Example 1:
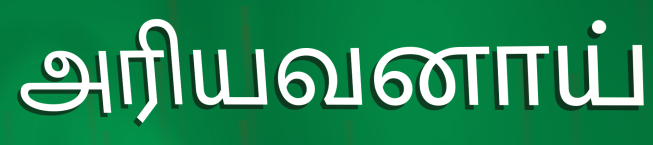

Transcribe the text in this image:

அரியவனாய்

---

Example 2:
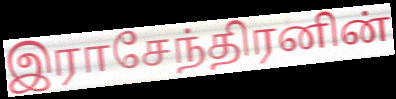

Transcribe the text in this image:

இராசேந்திரனின்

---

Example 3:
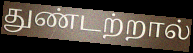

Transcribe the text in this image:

துண்டற்றால்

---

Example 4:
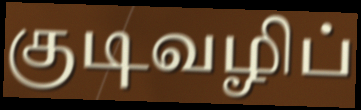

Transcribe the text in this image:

குடிவழிப்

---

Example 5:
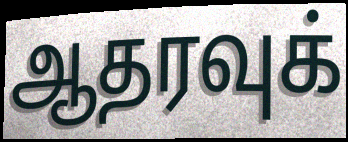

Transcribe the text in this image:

ஆதரவுக்